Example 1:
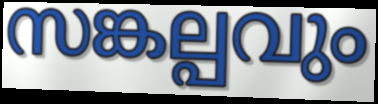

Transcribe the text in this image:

സങ്കല്പവും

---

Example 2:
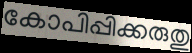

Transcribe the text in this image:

കോപിപ്പിക്കരുതു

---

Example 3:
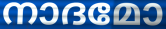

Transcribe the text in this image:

നാദമോ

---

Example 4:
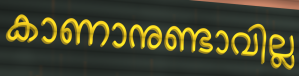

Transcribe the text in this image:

കാണാനുണ്ടാവില്ല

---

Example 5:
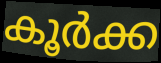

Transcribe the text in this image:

കൂർക്ക